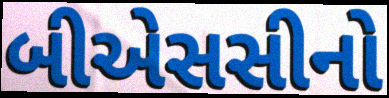
બીએસસીનો